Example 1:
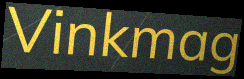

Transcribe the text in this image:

Vinkmag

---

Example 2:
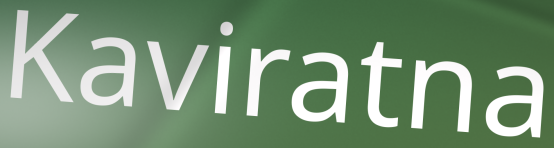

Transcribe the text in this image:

Kaviratna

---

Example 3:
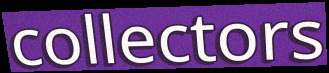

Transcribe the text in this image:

collectors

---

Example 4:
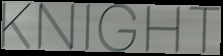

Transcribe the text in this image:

KNIGHT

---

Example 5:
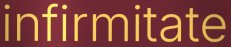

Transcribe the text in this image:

infirmitate